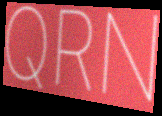
QRN